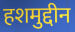
हशमुद्दीन